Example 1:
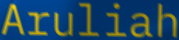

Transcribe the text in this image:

Aruliah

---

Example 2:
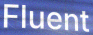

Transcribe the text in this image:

Fluent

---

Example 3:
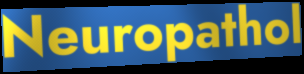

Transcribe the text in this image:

Neuropathol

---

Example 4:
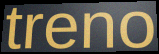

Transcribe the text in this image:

treno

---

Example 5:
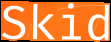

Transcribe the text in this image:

Skid